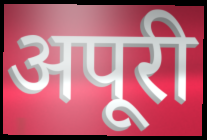
अपूरी